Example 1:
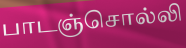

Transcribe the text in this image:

பாடஞ்சொல்லி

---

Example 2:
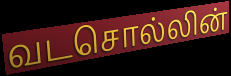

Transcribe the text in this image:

வடசொல்லின்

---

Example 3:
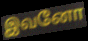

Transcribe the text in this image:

இவனோ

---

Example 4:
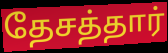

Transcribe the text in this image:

தேசத்தார்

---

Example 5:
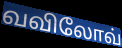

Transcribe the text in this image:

வவிலோவ்